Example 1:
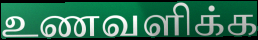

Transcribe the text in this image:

உணவளிக்க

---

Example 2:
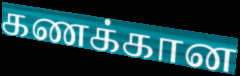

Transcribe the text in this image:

கணக்கான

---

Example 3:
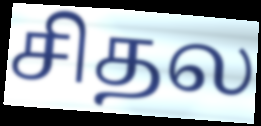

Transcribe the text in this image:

சிதல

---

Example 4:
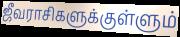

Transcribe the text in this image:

ஜீவராசிகளுக்குள்ளும்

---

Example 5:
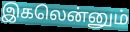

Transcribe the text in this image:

இகலென்னும்